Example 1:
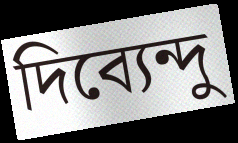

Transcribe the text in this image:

দিব্যেন্দু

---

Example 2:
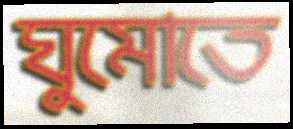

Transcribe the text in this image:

ঘুমোতে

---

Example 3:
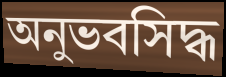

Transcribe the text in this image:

অনুভবসিদ্ধ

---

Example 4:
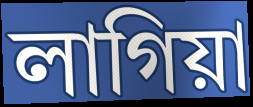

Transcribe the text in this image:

লাগিয়া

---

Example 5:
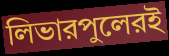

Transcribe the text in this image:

লিভারপুলেরই